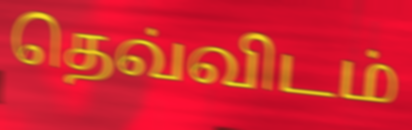
தெவ்விடம்